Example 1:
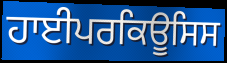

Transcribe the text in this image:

ਹਾਈਪਰਕਿਊਸਿਸ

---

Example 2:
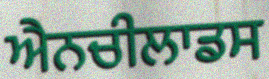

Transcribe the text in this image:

ਐਨਚੀਲਾਡਸ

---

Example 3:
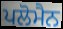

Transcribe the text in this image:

ਪਲੋਮੈਨ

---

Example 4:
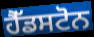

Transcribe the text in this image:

ਹੈੱਡਸਟੋਨ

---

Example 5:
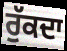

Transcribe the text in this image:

ਰੁੱਕਦਾ